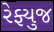
રેફ્યુજ